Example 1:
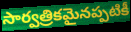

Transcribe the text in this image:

సార్వత్రికమైనప్పటికీ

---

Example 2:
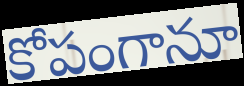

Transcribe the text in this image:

కోపంగానూ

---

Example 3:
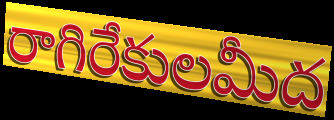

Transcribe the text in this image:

రాగిరేకులమీద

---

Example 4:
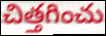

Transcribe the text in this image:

చిత్తగించు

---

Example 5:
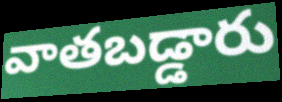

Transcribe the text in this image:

వాతబడ్డారు